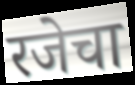
रजेचा